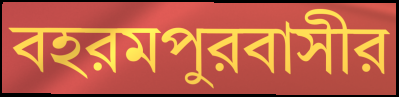
বহরমপুরবাসীর